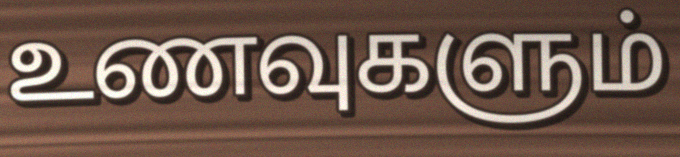
உணவுகளும்